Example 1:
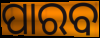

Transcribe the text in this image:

ପାରବ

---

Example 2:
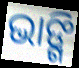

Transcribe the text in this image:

ଭାଙ୍ଗି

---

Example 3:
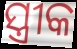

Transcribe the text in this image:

ସ୍ତ୍ରୀକ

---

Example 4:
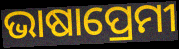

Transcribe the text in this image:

ଭାଷାପ୍ରେମୀ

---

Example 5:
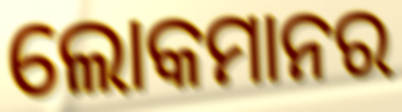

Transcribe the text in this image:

ଲୋକମାନର